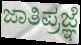
ಜಾತಿಪ್ರಜ್ಞೆ